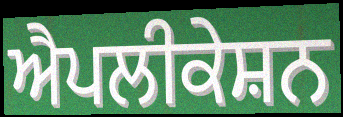
ਐਪਲੀਕੇਸ਼ਨ